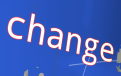
change